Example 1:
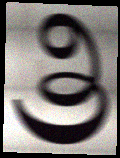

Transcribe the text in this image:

ತಿ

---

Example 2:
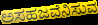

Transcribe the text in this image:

ಅಸಹಜವೆನಿಸುವ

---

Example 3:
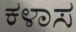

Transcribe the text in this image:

ಕಳಾಸ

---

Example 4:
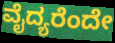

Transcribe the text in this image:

ವೈದ್ಯರೆಂದೇ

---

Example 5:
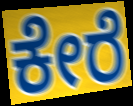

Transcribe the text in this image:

ಕೇರೆ